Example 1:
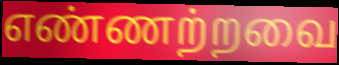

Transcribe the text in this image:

எண்ணற்றவை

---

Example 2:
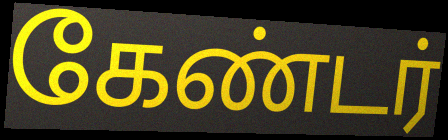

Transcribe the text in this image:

கேண்டர்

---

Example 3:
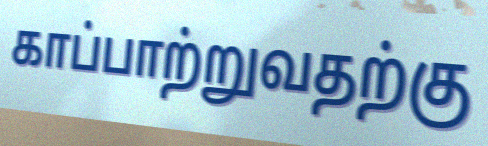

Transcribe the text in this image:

காப்பாற்றுவதற்கு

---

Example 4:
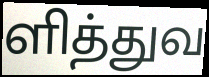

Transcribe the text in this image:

ளித்துவ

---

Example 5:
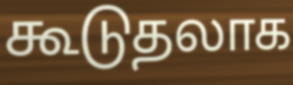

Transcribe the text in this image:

கூடுதலாக